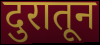
दुरातून